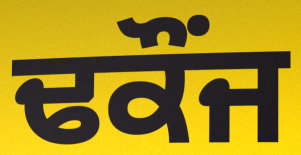
ਢਕੌਂਜ